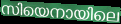
സിയെനായിലെ